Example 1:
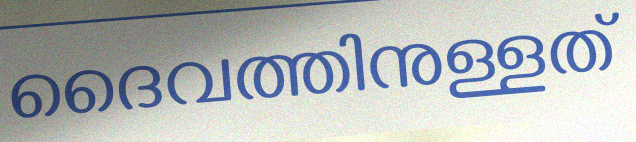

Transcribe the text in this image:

ദൈവത്തിനുള്ളത്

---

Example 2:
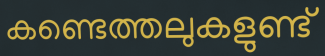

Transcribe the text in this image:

കണ്ടെത്തലുകളുണ്ട്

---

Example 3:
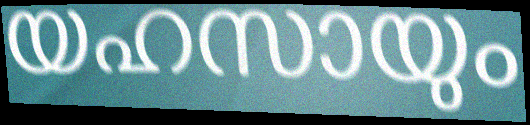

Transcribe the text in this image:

യഹസായും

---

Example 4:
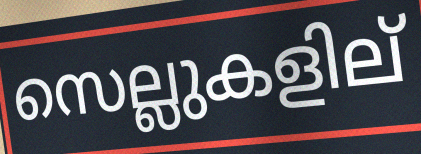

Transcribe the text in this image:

സെല്ലുകളില്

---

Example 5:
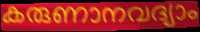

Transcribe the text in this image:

കരുണാനവദ്യാം